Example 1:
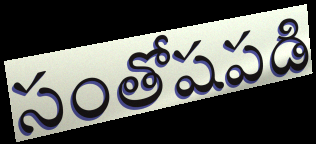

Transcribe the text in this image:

సంతోషపడి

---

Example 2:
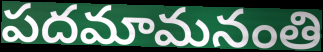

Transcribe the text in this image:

పదమామనంతి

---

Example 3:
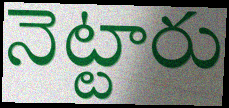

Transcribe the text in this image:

నెట్టారు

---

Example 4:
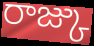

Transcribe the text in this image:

రాజ్కు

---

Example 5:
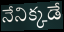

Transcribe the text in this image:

నేనిక్కడే